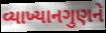
વ્યાખ્યાનગુણને